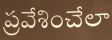
ప్రవేశించేలా